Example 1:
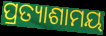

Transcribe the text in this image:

ପ୍ରତ୍ୟାଶାମୟ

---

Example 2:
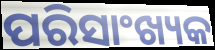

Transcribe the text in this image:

ପରିସାଂଖ୍ୟକ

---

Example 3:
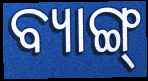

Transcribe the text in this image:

ବ୍ୟାଙ୍ଗ୍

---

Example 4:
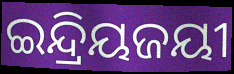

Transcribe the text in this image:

ଇନ୍ଦ୍ରିୟଜୟୀ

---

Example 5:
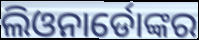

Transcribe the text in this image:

ଲିଓନାର୍ଡୋଙ୍କର